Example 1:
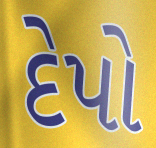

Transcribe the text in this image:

દેપો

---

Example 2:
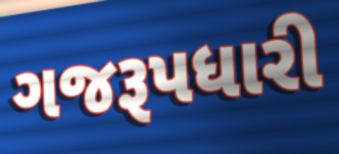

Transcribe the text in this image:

ગજરૂપધારી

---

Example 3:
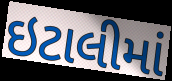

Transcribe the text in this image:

ઇટાલીમાં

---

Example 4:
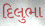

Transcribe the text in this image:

દિલુભા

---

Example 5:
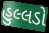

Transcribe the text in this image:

હુલ્લડો